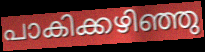
പാകിക്കഴിഞ്ഞു